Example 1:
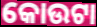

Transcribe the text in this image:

କୋଉଟା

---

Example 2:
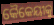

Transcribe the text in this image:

କୈକେୟୀକୁ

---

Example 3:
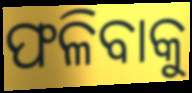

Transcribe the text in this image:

ଫଳିବାକୁ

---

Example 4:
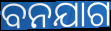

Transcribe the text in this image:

ବନଯାଗ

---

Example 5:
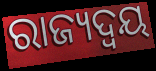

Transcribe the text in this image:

ରାଜ୍ୟଦ୍ୱୟ